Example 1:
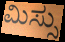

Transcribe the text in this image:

ಮಿಸ್ಸು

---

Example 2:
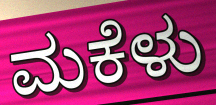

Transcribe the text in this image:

ಮಕೆಳು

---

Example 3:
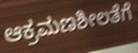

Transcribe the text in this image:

ಆಕ್ರಮಣಶೀಲತೆಗೆ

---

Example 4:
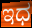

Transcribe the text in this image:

ಇಧ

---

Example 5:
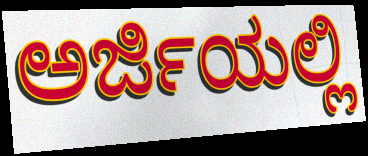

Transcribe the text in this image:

ಅರ್ಜಿಯಲ್ಲಿ